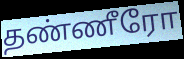
தண்ணீரோ